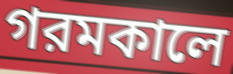
গরমকালে